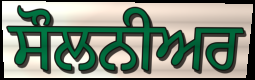
ਸੌਲਨੀਅਰ